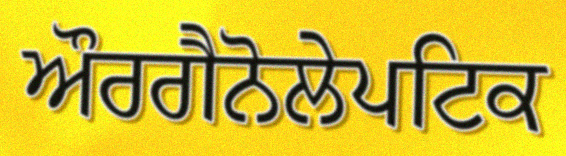
ਔਰਗੈਨੋਲੇਪਟਿਕ